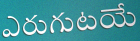
ఎరుగుటయే